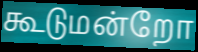
கூடுமன்றோ